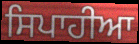
ਸਿਪਾਹੀਆ